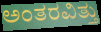
ಅಂತರವಿತ್ತು